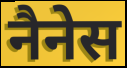
नैनेस